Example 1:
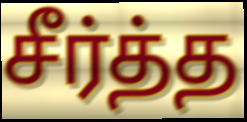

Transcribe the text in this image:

சீர்த்த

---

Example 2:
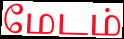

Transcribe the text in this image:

மேடம்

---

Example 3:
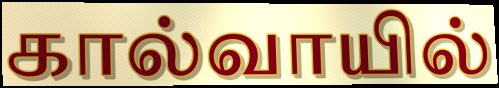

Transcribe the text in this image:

கால்வாயில்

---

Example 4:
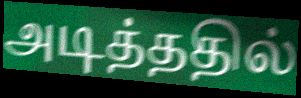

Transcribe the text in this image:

அடித்ததில்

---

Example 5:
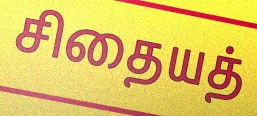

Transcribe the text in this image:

சிதையத்